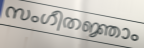
സംഗീതജ്ഞാം